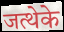
जत्थेके